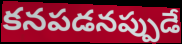
కనపడనప్పుడే